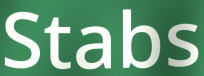
Stabs